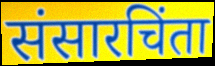
संसारचिंता